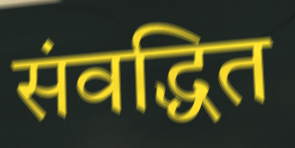
संवद्धित